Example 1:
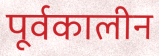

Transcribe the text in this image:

पूर्वकालीन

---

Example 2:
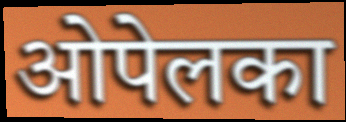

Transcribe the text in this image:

ओपेलका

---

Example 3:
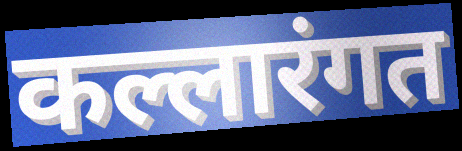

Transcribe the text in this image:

कल्लारंगत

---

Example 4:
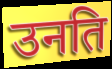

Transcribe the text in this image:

उनति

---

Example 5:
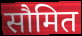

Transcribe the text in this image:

सौमित